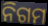
ନିଗମ